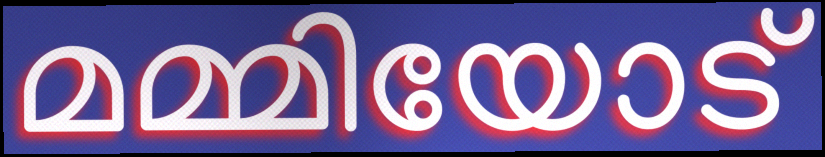
മമ്മിയോട്